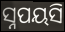
ସ୍ନପୟସି